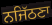
ਨਜਿੱਠਣਾ